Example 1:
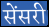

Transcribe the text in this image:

सेंसरी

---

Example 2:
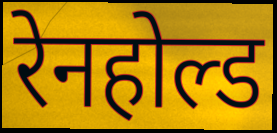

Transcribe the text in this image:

रेनहोल्ड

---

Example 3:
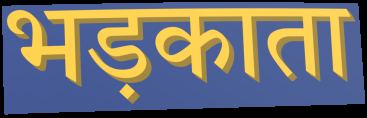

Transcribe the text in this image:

भड़काता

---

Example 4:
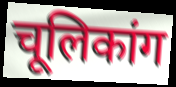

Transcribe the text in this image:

चूलिकांग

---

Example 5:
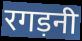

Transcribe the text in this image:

रगड़नी